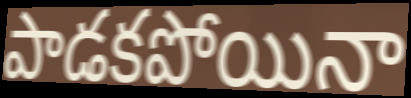
పాడకపోయినా